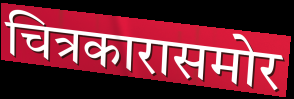
चित्रकारासमोर